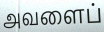
அவளைப்